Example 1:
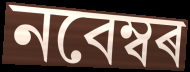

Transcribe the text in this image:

নবেম্বৰ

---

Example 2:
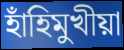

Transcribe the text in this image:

হাঁহিমুখীয়া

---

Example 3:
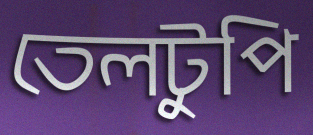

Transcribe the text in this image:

তেলটুপি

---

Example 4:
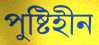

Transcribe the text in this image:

পুষ্টিহীন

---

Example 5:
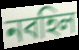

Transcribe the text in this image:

নবহিল